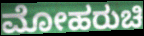
ಮೋಹರುಚಿ